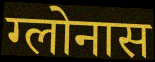
ग्लोनास